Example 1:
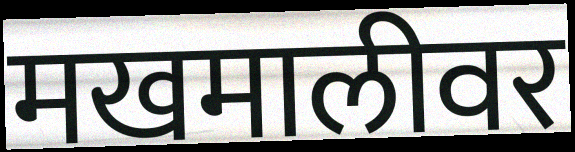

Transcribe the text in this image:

मखमालीवर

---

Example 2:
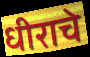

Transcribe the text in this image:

धीराचे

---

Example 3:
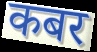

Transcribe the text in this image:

कबर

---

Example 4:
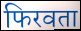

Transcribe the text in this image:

फिरवता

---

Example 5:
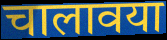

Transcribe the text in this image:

चालावया